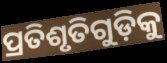
ପ୍ରତିଶୃତିଗୁଡ଼ିକୁ